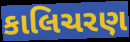
કાલિચરણ